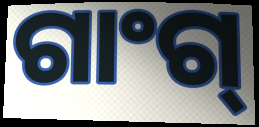
ଗାଂଗ୍